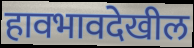
हावभावदेखील